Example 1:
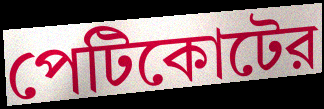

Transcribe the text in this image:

পেটিকোটের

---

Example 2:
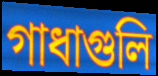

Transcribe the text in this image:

গাধাগুলি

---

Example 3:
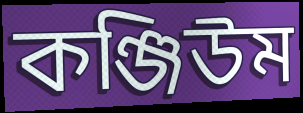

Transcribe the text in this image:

কঞ্জিউম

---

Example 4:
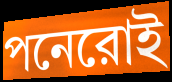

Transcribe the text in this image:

পনেরোই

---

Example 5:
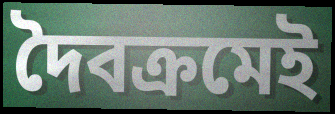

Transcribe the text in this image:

দৈবক্রমেই